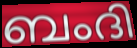
ബംദി